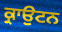
ਕ੍ਰਾਉਟਨ